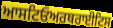
ਆਸਟਿਓਅਰਥਰਾਈਟਿਸ